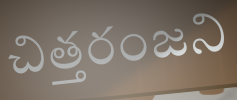
చిత్తరంజని